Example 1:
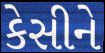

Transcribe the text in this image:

કેસીને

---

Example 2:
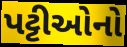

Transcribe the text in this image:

પટ્ટીઓનો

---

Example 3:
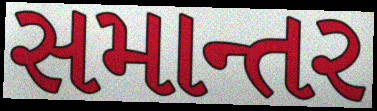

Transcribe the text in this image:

સમાન્તર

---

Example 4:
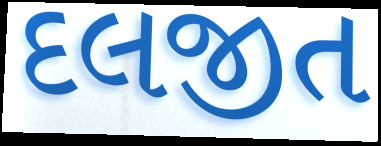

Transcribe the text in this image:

દલજીત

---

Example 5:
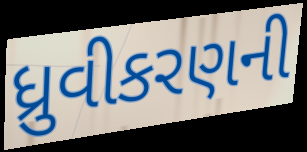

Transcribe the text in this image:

ધ્રુવીકરણની